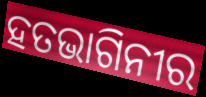
ହତଭାଗିନୀର